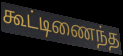
கூட்டிணைந்த